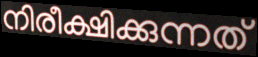
നിരീക്ഷിക്കുന്നത്